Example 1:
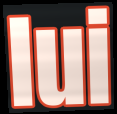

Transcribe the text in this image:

lui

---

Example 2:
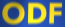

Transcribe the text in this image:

ODF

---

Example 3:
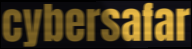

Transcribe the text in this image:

cybersafar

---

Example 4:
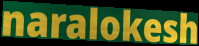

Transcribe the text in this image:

naralokesh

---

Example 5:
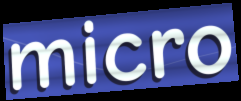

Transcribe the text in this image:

micro